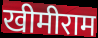
खीमीराम